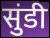
सुंडी